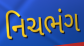
નિચભંગ